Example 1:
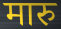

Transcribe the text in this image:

मारु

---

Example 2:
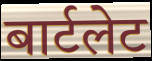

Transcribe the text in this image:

बार्टलेट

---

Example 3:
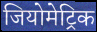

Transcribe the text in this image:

जियोमेट्रिक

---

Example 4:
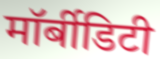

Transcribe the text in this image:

मॉर्बीडिटी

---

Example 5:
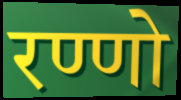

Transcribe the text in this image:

रण्णो